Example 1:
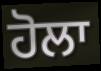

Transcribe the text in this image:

ਹੋਲਾ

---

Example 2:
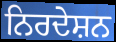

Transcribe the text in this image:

ਨਿਰਦੇਸ਼ਨ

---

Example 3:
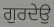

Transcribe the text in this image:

ਗੁਰਦੇਉ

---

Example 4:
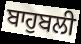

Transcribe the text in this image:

ਬਾਹੁਬਲੀ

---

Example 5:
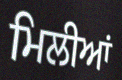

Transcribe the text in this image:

ਮਿਲੀਆਂ